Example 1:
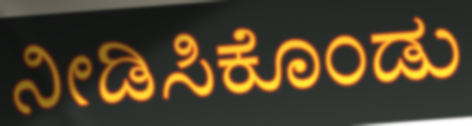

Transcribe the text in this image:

ನೀಡಿಸಿಕೊಂಡು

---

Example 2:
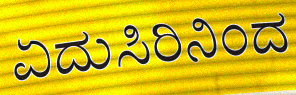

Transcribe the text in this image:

ಏದುಸಿರಿನಿಂದ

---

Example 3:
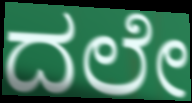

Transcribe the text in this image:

ದಲೇ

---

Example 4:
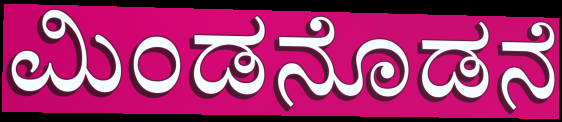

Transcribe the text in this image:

ಮಿಂಡನೊಡನೆ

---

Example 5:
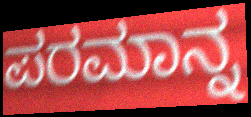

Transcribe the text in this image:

ಪರಮಾನ್ನ